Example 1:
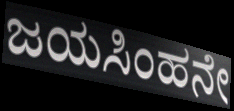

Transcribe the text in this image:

ಜಯಸಿಂಹನೇ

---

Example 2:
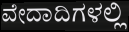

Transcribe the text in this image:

ವೇದಾದಿಗಳಲ್ಲಿ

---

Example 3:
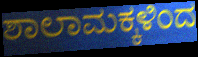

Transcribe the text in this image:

ಶಾಲಾಮಕ್ಕಳಿಂದ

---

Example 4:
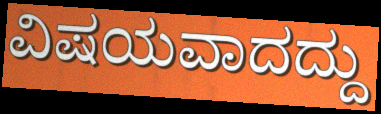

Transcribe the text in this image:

ವಿಷಯವಾದದ್ದು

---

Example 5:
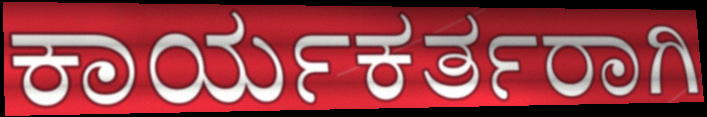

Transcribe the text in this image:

ಕಾರ್ಯಕರ್ತರಾಗಿ